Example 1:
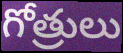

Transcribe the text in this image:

గోత్రులు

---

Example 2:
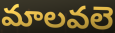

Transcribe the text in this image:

మాలవలె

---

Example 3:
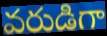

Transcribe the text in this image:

వరుడిగా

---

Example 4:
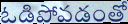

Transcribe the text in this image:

ఓడిపోవడంతో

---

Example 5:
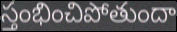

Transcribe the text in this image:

స్తంభించిపోతుందా